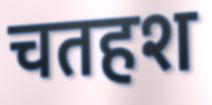
चतहश